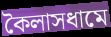
কৈলাসধামে